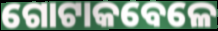
ଗୋଟାକବେଳେ